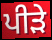
ਪੀੜੇ